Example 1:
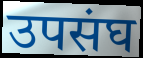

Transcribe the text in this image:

उपसंघ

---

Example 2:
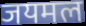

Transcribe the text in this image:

जयमल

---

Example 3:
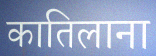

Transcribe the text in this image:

कातिलाना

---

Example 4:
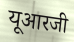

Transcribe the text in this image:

यूआरजी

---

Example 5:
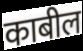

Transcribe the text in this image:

काबील